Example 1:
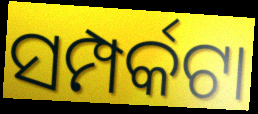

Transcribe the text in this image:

ସମ୍ପର୍କଟା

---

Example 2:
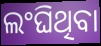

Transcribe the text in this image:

ଲଂଘିଥିବା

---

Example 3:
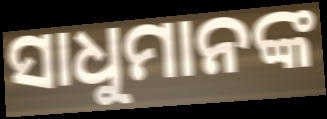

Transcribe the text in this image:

ସାଧୁମାନଙ୍କ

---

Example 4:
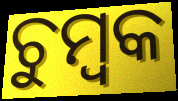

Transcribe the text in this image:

ଚୁମ୍ବକ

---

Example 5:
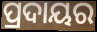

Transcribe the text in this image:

ପ୍ରଦାୟର